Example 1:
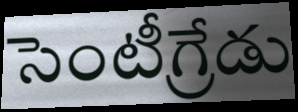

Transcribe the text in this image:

సెంటీగ్రేడు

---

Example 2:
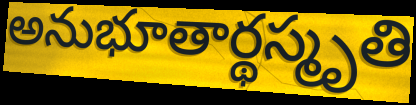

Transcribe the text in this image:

అనుభూతార్థస్మృతి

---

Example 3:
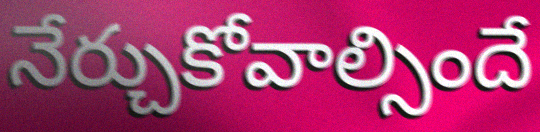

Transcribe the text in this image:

నేర్చుకోవాల్సిందే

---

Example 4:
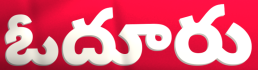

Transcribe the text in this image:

ఓదూరు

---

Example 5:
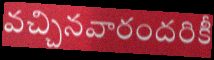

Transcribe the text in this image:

వచ్చినవారందరికీ